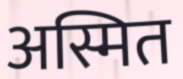
अस्मित